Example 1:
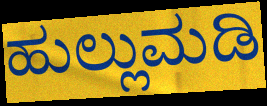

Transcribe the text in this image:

ಹುಲ್ಲುಮಡಿ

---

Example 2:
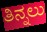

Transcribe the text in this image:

ತಿನ್ನಲು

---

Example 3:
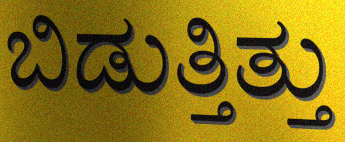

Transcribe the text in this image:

ಬಿಡುತ್ತಿತ್ತು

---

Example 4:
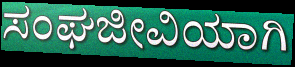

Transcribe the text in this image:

ಸಂಘಜೀವಿಯಾಗಿ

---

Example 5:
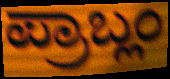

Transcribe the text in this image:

ಪ್ರಾಬ್ಲಂ